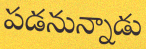
పడనున్నాడు